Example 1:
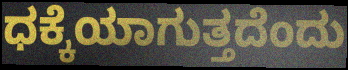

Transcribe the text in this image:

ಧಕ್ಕೆಯಾಗುತ್ತದೆಂದು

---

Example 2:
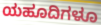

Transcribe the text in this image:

ಯಹೂದಿಗಳೂ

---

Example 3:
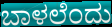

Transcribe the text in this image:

ಬಾಳಲೆಂದು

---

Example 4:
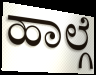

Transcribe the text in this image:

ಹಾಲ್ಗೆ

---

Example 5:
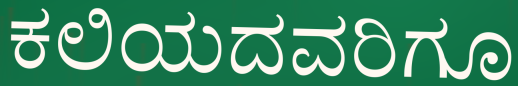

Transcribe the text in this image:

ಕಲಿಯದವರಿಗೂ